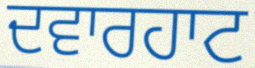
ਦਵਾਰਹਾਟ